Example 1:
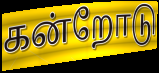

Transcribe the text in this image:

கன்றோடு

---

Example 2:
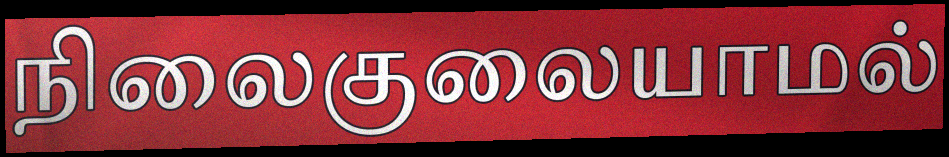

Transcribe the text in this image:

நிலைகுலையாமல்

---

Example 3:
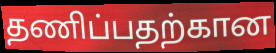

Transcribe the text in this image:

தணிப்பதற்கான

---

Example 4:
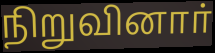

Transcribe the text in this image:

நிறுவினார்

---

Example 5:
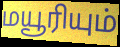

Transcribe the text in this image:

மயூரியும்